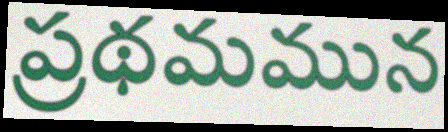
ప్రథమమున